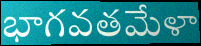
భాగవతమేళా